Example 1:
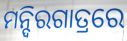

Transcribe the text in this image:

ମନ୍ଦିରଗାତ୍ରରେ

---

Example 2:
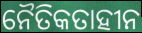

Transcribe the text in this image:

ନୈତିକତାହୀନ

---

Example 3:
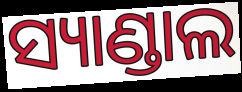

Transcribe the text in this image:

ସ୍ୟାଣ୍ଡାଲ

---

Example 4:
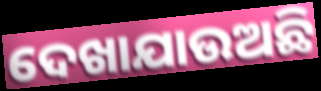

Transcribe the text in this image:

ଦେଖାଯାଉଅଛି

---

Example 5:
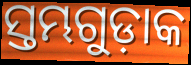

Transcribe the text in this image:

ସ୍ତମ୍ଭଗୁଡ଼ାକ